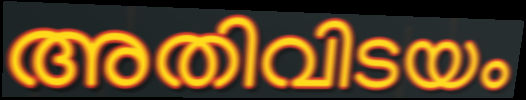
അതിവിടയം